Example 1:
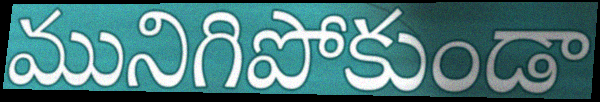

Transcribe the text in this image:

మునిగిపోకుండా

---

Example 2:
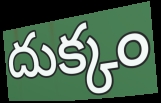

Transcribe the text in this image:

దుక్కం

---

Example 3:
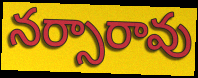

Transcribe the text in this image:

నర్సారావు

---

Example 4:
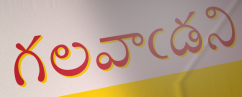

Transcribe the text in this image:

గలవాఁడని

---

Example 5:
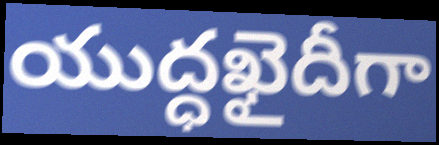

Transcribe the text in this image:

యుద్ధఖైదీగా